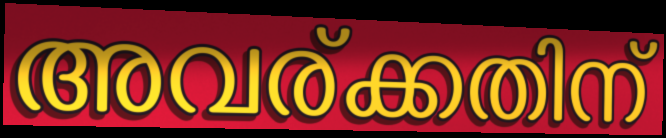
അവര്ക്കതിന്